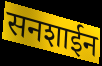
सनशाईन